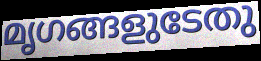
മൃഗങ്ങളുടേതു